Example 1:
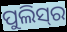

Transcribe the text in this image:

ପୁଲିସ୍‍ର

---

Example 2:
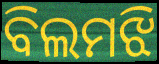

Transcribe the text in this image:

ବିଲମଝି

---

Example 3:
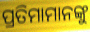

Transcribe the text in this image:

ପ୍ରତିମାମାନଙ୍କୁ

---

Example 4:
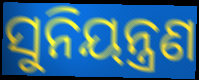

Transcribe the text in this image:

ସୁନିୟନ୍ତ୍ରଣ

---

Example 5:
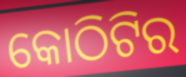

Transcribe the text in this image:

କୋଠିଟିର